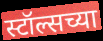
स्टॉल्सच्या